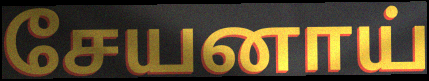
சேயனாய்